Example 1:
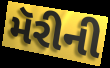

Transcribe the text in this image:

મૅરીની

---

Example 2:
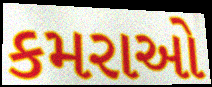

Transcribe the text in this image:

કમરાઓ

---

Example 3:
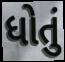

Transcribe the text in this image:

ધોતું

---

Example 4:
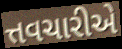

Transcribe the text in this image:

ત્તવચારીએ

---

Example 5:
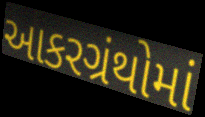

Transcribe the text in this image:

આકરગ્રંથોમાં